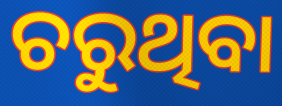
ଚରୁଥିବା